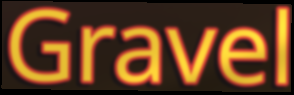
Gravel